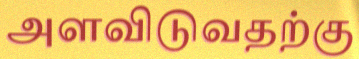
அளவிடுவதற்கு